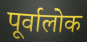
पूर्वालोक